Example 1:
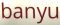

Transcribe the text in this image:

banyu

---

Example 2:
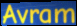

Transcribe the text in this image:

Avram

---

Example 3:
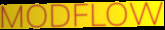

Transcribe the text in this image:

MODFLOW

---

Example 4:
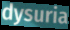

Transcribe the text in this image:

dysuria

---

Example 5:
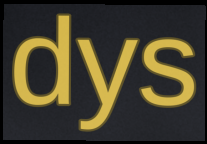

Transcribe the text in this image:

dys